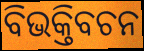
ବିଭକ୍ତିବଚନ